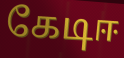
கேடிஈ